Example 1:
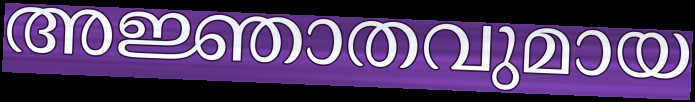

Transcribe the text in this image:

അജ്ഞാതവുമായ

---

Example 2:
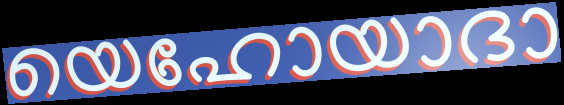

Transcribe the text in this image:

യെഹോയാദാ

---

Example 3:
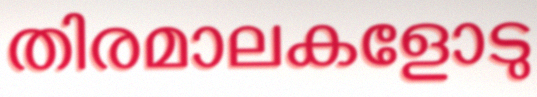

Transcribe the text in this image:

തിരമാലകളോടു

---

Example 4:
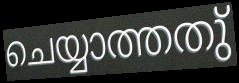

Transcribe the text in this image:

ചെയ്യാത്തതു്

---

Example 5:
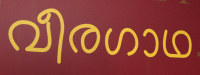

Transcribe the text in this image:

വീരഗാഥ